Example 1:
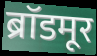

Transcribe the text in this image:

ब्रॉडमूर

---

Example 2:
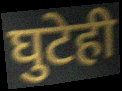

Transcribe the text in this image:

घुटेही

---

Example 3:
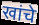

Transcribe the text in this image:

खांचे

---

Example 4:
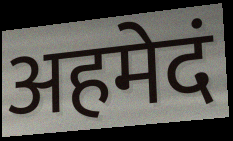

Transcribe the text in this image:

अहमेदं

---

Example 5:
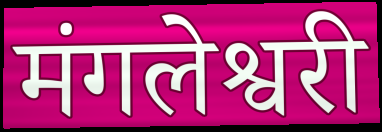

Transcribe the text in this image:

मंगलेश्वरी